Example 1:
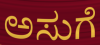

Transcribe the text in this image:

ಅಸುಗೆ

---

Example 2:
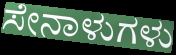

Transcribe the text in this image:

ಸೇನಾಳುಗಳು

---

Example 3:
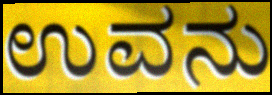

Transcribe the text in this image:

ಉವನು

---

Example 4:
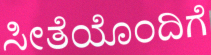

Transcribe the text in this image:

ಸೀತೆಯೊಂದಿಗೆ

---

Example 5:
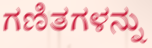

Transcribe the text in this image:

ಗಣಿತಗಳನ್ನು